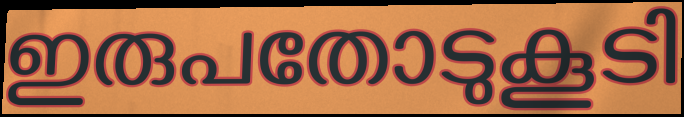
ഇരുപതോടുകൂടി